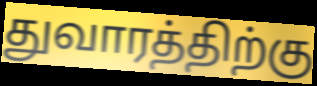
துவாரத்திற்கு